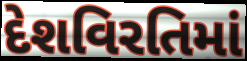
દેશવિરતિમાં